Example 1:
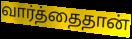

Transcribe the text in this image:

வார்த்தைதான்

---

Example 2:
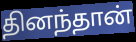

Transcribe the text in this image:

தினந்தான்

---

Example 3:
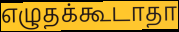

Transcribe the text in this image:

எழுதக்கூடாதா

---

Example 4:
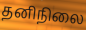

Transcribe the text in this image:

தனிநிலை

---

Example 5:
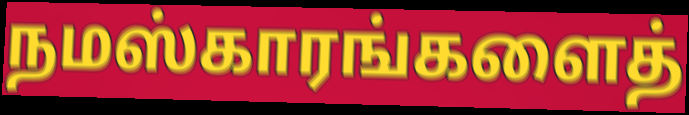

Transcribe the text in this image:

நமஸ்காரங்களைத்